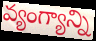
వ్యంగ్యాన్ని